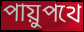
পায়ুপথে